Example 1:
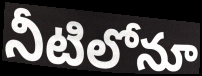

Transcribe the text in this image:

నీటిలోనూ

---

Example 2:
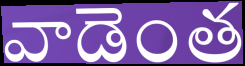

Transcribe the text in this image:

వాడెంత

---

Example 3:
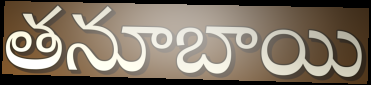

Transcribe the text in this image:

తనూబాయి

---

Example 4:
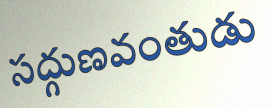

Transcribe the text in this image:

సద్గుణవంతుడు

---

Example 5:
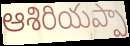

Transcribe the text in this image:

ఆశిరియప్పా